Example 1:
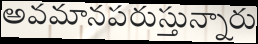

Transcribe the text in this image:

అవమానపరుస్తున్నారు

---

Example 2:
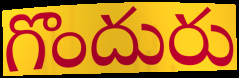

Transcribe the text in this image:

గొందురు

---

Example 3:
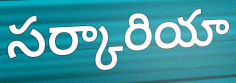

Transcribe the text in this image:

సర్కారియా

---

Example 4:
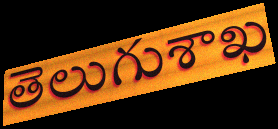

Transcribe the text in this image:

తెలుగుశాఖ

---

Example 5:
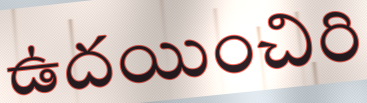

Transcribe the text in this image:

ఉదయించిరి